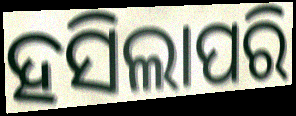
ହସିଲାପରି